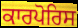
ਕਾਰਪੋਰਿਸ